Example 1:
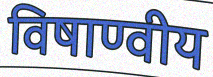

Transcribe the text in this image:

विषाण्वीय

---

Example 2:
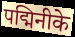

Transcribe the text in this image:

पद्मिनीके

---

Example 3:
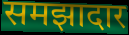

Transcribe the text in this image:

समझादार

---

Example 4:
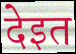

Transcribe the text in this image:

देइत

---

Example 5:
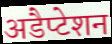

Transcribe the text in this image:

अडैप्टेशन